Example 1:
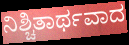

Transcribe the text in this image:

ನಿಶ್ಚಿತಾರ್ಥವಾದ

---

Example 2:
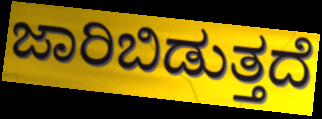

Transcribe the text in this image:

ಜಾರಿಬಿಡುತ್ತದೆ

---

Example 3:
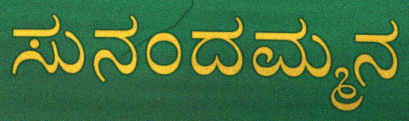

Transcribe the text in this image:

ಸುನಂದಮ್ಮನ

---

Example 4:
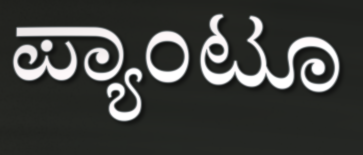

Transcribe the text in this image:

ಪ್ಯಾಂಟೂ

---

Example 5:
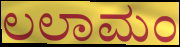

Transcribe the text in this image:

ಲಲಾಮಂ